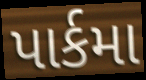
પાર્કમા